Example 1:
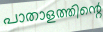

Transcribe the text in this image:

പാതാളത്തിന്റെ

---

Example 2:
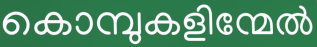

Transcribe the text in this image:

കൊമ്പുകളിന്മേൽ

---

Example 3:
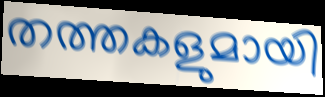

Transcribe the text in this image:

തത്തകളുമായി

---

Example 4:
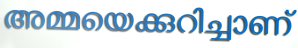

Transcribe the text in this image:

അമ്മയെക്കുറിച്ചാണ്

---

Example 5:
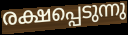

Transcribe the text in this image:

രക്ഷപ്പെടുന്നു